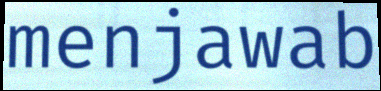
menjawab